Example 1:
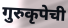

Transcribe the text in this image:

गुरुकृपेची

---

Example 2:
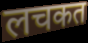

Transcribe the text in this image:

लचकत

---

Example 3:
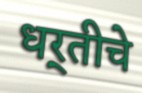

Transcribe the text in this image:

धर्तीचे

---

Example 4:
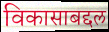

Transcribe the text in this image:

विकासाबद्दल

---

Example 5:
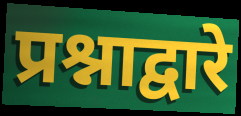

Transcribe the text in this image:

प्रश्नाद्वारे